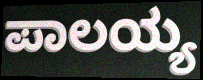
ಪಾಲಯ್ಯ